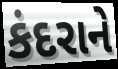
કંદરાને